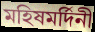
মহিষমর্দিনী